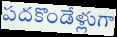
పదకొండేళ్లుగా